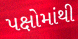
પક્ષોમાંથી